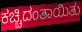
ಕಚ್ಚಿದಂತಾಯಿತು